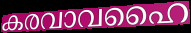
കരവാവഹൈ